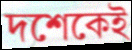
দশেকেই